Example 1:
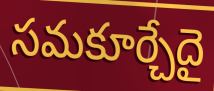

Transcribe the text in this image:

సమకూర్చేదై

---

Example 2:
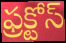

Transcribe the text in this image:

ఫ్రక్టోస్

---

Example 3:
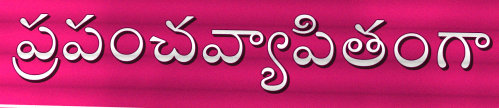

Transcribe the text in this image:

ప్రపంచవ్యాపితంగా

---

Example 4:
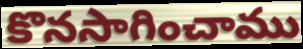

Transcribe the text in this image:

కొనసాగించాము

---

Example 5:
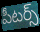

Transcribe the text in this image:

పీటర్స్